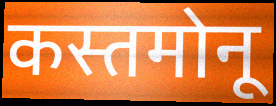
कस्तमोनू